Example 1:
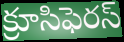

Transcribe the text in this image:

క్రూసిఫెరస్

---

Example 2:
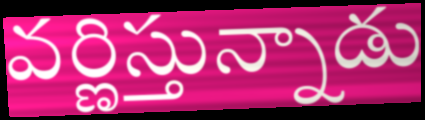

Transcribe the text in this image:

వర్ణిస్తున్నాడు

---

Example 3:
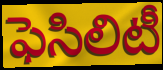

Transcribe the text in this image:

ఫెసిలిటీ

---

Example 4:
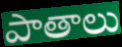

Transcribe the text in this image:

పాతాలు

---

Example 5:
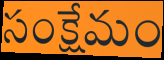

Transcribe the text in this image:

సంక్షేమం